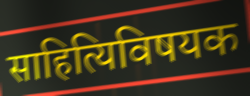
साहित्यिविषयक